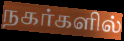
நகர்களில்